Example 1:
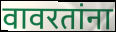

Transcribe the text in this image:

वावरतांना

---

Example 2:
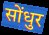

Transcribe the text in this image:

सोंधुर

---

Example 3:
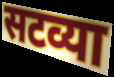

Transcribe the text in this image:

सटव्या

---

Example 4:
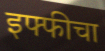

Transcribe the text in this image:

इफ्फीचा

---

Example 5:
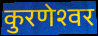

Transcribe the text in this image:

कुरणेश्वर